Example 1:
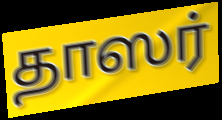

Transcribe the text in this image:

தாஸர்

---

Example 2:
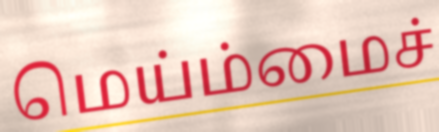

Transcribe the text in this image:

மெய்ம்மைச்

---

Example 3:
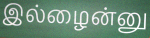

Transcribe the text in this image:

இல்ழைன்னு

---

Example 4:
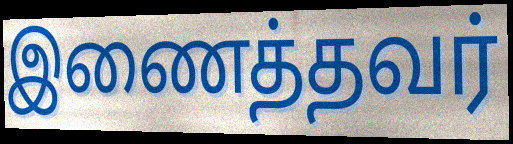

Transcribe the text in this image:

இணைத்தவர்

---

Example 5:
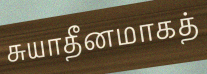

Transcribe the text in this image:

சுயாதீனமாகத்